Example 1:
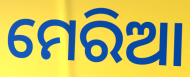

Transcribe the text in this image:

ମେରିଆ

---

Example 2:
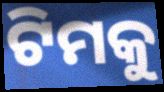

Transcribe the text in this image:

ଟିମକୁ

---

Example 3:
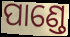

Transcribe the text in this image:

ପାଣ୍ଡେ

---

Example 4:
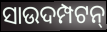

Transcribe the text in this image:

ସାଉଦମ୍ପଟନ୍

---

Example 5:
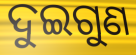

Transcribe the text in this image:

ଦୁଇଗୁଣ